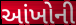
આંખોની